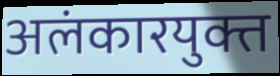
अलंकारयुक्त